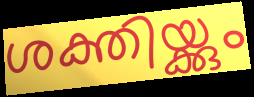
ശക്തിയ്ക്കും